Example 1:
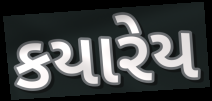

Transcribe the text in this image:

કયારેય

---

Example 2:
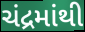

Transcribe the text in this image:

ચંદ્રમાંથી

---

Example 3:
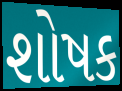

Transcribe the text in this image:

શોષક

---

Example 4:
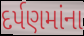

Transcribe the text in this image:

દર્પણમાંના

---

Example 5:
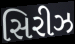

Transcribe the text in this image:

સિરીઝ